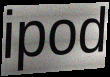
ipod